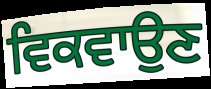
ਵਿਕਵਾਉਣ